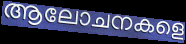
ആലോചനകളെ